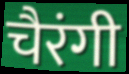
चैरंगी